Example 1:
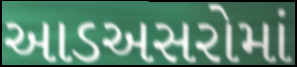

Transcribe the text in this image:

આડઅસરોમાં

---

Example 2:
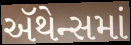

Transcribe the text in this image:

ઍથેન્સમાં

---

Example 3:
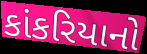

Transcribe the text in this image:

કાંકરિયાનો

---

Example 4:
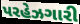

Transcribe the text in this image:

પરહેઝગારી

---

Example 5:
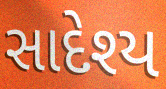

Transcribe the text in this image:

સાદેશ્ય